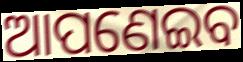
ଆପଣେଇବ